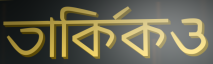
তার্কিকও